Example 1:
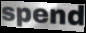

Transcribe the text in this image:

spend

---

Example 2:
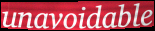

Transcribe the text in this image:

unavoidable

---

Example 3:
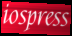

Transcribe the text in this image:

iospress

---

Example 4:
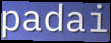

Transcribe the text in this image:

padai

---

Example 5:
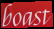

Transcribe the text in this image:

boast